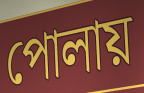
পোলায়